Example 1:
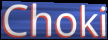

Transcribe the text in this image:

Choki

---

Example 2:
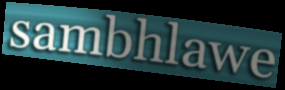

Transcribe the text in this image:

sambhlawe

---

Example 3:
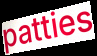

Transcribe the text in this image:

patties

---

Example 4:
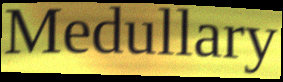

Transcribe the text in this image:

Medullary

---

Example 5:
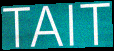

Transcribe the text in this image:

TAIT